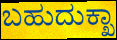
ಬಹುದುಕ್ಖಾ